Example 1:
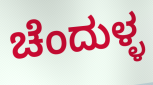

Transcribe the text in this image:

ಚೆಂದುಳ್ಳ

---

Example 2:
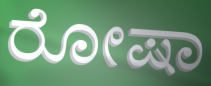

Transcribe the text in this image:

ರೋಷಾ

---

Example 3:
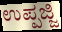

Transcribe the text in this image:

ಉಪ್ಪಜ್ಜಿ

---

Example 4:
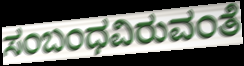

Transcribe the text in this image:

ಸಂಬಂಧವಿರುವಂತೆ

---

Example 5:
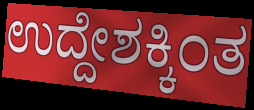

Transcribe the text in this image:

ಉದ್ದೇಶಕ್ಕಿಂತ